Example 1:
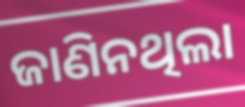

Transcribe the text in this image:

ଜାଣିନଥିଲା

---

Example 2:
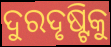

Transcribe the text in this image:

ଦୁରଦୃଷ୍ଟିକୁ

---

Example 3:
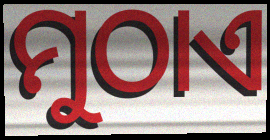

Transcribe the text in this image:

ମୁଠାଏ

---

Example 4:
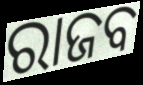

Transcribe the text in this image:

ରାଜବ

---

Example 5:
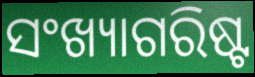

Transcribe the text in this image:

ସଂଖ୍ୟାଗରିଷ୍ଟ